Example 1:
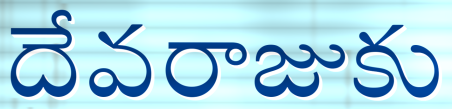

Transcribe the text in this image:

దేవరాజుకు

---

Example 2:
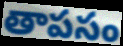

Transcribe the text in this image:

తాపసం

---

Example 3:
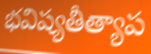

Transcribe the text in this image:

భవిష్యతీత్యాప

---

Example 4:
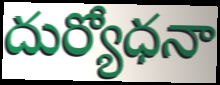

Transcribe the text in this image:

దుర్యోధనా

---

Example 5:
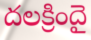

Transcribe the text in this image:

దలక్రిందై